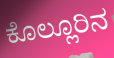
ಕೊಲ್ಲೂರಿನ